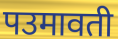
पउमावती